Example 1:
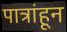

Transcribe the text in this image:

पात्रांहून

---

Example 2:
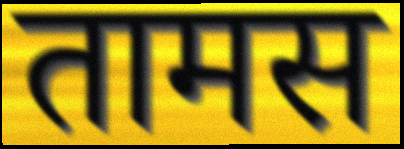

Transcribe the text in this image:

तामस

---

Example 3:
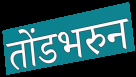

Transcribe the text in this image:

तोंडभरुन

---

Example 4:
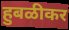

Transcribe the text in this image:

हुबळीकर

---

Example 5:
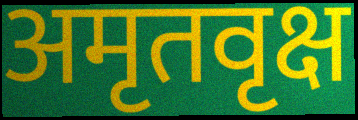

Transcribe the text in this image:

अमृतवृक्ष